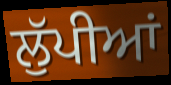
ਲੁੱਪੀਆਂ